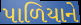
પાળિયાને